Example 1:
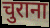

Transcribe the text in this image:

चुराना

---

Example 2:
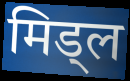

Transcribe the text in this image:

मिड्ल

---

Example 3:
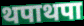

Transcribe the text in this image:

थपाथपा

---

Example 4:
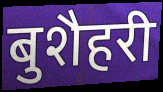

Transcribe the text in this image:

बुशैहरी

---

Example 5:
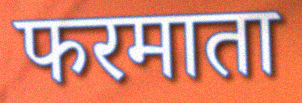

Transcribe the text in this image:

फरमाता